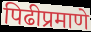
पिढीप्रमाणे